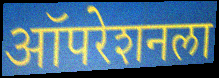
ऑपरेशनला